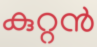
കുറ്റൻ